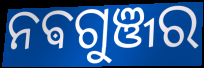
ନଵଗୁଞ୍ଜର